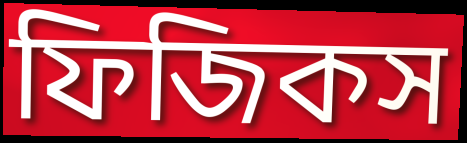
ফিজিকস